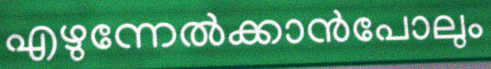
എഴുന്നേൽക്കാൻപോലും